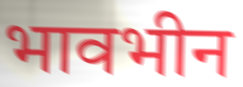
भावभीन